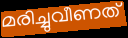
മരിച്ചുവീണത്